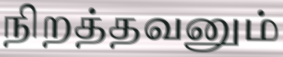
நிறத்தவனும்